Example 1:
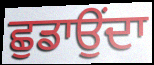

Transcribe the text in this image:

ਛੁਡਾਉਂਦਾ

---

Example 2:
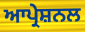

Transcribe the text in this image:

ਆਪ੍ਰੇਸ਼ਨਲ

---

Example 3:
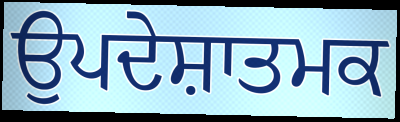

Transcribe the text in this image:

ਉਪਦੇਸ਼ਾਤਮਕ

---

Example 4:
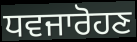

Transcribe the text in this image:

ਧਵਜਾਰੋਹਣ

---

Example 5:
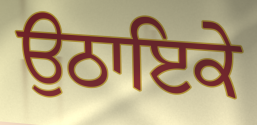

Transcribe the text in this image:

ਉਠਾਇਕੇ